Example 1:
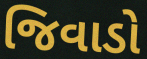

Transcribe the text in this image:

જિવાડો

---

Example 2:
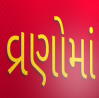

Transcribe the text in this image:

વ્રણોમાં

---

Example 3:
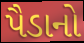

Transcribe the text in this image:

પૈડાનો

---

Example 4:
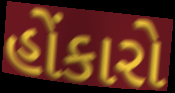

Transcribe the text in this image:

હોંકારો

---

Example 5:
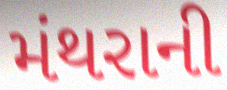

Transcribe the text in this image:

મંથરાની